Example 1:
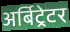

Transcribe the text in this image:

अर्बिट्रेटर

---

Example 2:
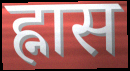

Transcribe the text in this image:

ह्नास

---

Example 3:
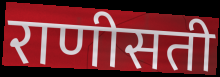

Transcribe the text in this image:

राणीसती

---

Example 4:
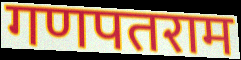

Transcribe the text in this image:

गणपतराम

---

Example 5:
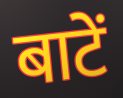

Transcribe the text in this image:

बाटें